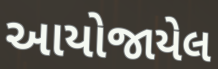
આયોજાયેલ